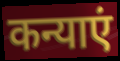
कन्याएं